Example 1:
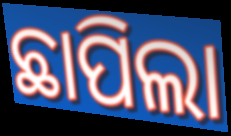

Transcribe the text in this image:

ଛାପିଲା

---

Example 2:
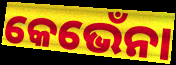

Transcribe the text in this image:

କେଭେଁନା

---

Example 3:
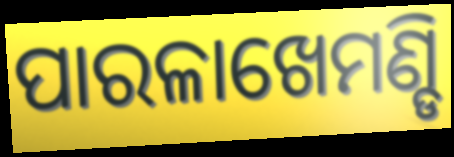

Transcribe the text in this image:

ପାରଳାଖେମଣ୍ଡି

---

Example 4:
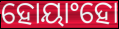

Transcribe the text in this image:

ହୋୟାଂହୋ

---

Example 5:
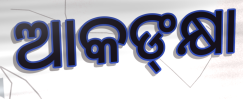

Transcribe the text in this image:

ଆକଙ୍‍କ୍ଷା